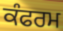
ਕੰਫਰਮ